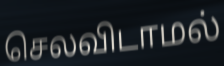
செலவிடாமல்